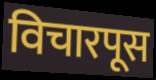
विचारपूस